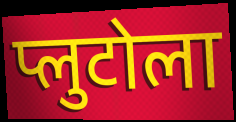
प्लुटोला